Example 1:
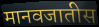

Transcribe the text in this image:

मानवजातीस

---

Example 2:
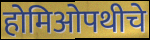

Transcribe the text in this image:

होमिओपथीचे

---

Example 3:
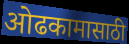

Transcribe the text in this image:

ओढकामासाठी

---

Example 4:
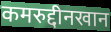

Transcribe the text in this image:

कमरुद्दीनखान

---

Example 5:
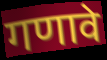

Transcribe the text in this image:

गणावे